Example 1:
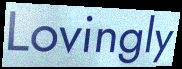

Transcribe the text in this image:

Lovingly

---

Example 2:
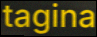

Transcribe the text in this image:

tagina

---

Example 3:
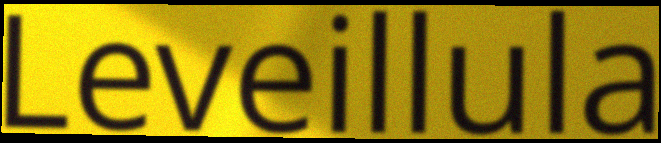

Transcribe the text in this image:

Leveillula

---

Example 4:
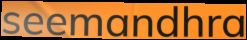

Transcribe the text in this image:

seemandhra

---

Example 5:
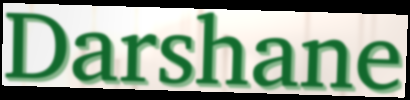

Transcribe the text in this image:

Darshane